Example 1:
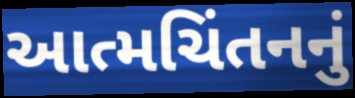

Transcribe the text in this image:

આત્મચિંતનનું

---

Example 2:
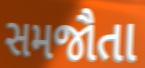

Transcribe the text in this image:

સમજૌતા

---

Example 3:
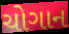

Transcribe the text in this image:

ચોગાન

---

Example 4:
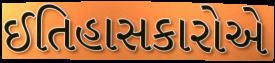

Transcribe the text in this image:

ઈતિહાસકારોએ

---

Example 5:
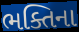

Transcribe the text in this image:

ભક્તિના